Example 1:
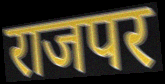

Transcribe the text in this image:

राजपर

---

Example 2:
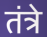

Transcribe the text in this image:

तंत्रे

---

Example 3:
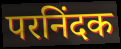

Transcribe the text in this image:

परनिंदक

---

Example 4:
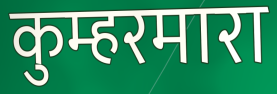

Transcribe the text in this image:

कुम्हरमारा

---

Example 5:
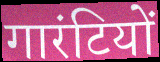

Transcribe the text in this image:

गारंटियों